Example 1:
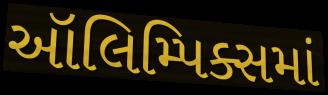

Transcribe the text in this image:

ઑલિમ્પિક્સમાં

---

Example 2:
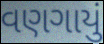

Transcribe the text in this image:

વણગાયું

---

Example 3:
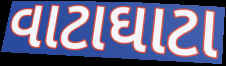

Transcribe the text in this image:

વાટાઘાટા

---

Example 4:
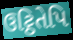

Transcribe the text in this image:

ઉટ્ઠિતેપિ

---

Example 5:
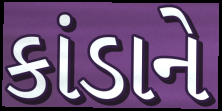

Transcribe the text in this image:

કાંડાને